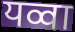
यव्वा